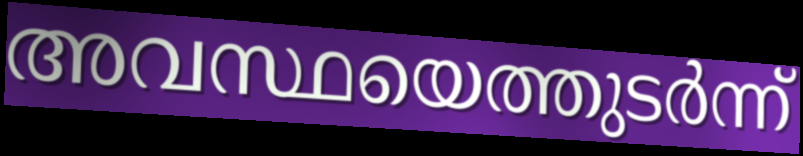
അവസ്ഥയെത്തുടർന്ന്